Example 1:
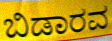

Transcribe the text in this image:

ಬಿಡಾರವ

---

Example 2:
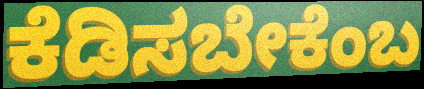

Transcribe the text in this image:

ಕೆಡಿಸಬೇಕೆಂಬ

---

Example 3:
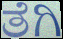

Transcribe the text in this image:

ತೆಗಿ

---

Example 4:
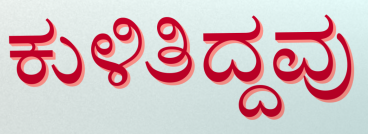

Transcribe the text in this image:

ಕುಳಿತಿದ್ದವು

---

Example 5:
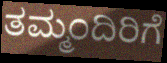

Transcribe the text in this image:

ತಮ್ಮಂದಿರಿಗೆ